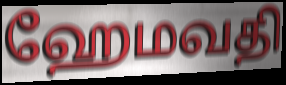
ஹேமவதி